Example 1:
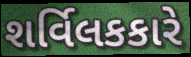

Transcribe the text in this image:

શર્વિલકકારે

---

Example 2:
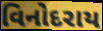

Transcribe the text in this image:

વિનોદરાય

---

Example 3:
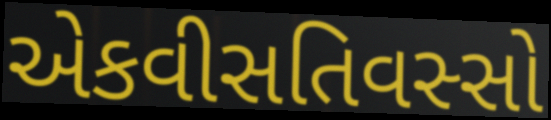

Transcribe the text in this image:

એકવીસતિવસ્સો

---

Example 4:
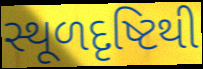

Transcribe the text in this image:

સ્થૂળદૃષ્ટિથી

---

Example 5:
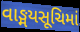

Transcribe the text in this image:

વાઙ્મયસૂચિમાં